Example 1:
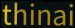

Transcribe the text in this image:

thinai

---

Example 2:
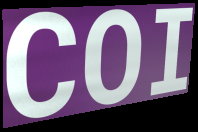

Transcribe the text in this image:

COI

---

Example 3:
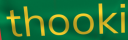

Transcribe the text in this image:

thooki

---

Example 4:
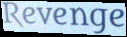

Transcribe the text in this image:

Revenge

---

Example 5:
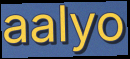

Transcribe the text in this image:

aalyo